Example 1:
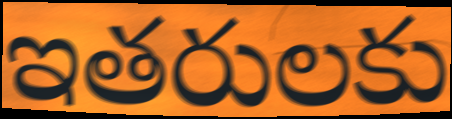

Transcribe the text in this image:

ఇతరులకు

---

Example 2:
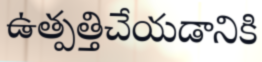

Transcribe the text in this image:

ఉత్పత్తిచేయడానికి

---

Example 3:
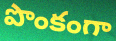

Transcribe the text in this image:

పొంకంగా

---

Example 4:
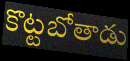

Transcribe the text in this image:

కొట్టబోతాడు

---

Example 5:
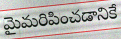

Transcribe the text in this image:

మైమరిపించడానికే